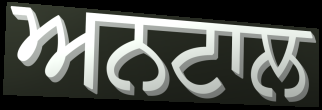
ਅਨਟਾਲ